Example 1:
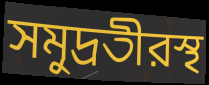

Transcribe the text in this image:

সমুদ্রতীরস্থ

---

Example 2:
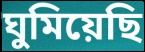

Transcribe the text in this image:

ঘুমিয়েছি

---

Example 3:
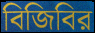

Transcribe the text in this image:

বিজিবির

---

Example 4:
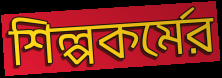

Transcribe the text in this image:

শিল্পকর্মের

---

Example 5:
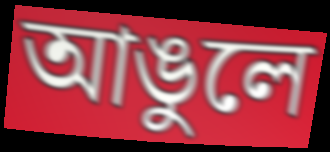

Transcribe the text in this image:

আঙুলে